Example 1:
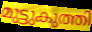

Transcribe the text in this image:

മുട്ടുകുത്തി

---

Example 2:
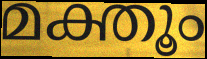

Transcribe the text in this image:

മക്തൂം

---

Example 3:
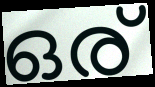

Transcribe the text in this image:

ഒര്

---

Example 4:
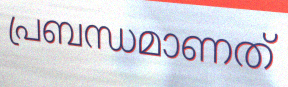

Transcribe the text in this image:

പ്രബന്ധമാണത്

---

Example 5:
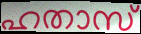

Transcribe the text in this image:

ഹതാസ്